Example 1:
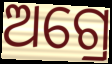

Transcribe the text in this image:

ଅଗ୍ରେ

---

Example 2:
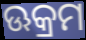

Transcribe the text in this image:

ଊକ୍ରମ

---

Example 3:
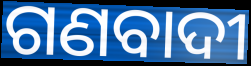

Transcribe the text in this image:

ଗଣବାଦୀ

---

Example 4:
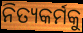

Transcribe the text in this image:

ନିତ୍ୟକର୍ମକୁ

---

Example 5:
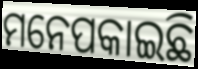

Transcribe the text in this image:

ମନେପକାଇଛି